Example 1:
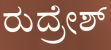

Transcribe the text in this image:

ರುದ್ರೇಶ್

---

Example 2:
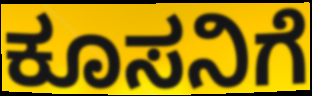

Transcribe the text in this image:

ಕೂಸನಿಗೆ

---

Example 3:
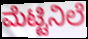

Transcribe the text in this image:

ಮೆಟ್ಟಿನಿಲೆ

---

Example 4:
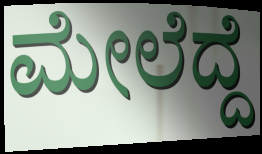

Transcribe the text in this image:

ಮೇಲೆದ್ದೆ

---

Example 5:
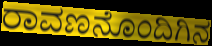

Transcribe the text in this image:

ರಾವಣನೊಂದಿಗಿನ